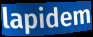
lapidem